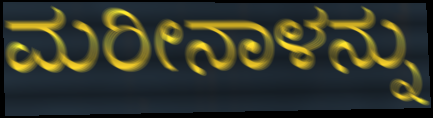
ಮರೀನಾಳನ್ನು